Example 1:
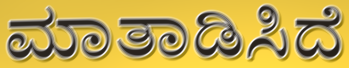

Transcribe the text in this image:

ಮಾತಾಡಿಸಿದೆ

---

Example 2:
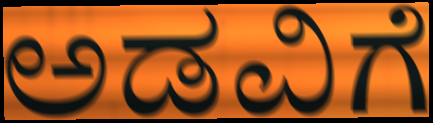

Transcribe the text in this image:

ಅಡವಿಗೆ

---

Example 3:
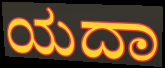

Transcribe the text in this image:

ಯದಾ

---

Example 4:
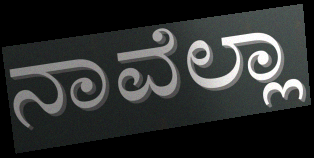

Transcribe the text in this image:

ನಾವೆಲ್ಲಾ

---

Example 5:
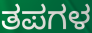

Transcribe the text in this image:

ತಪಗಳ